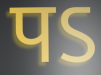
पऽ